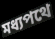
মধ্যপথে